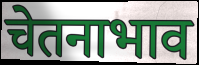
चेतनाभाव